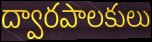
ద్వారపాలకులు